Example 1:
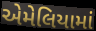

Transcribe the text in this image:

એમેલિયામાં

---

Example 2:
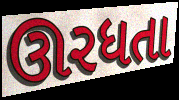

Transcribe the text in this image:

ઊરધતા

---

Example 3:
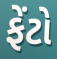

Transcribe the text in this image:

ફેંટો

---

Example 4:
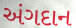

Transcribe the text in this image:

અંગદાન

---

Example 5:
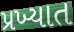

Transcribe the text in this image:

પ્રખ્યાત